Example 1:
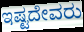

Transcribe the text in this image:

ಇಷ್ಟದೇವರು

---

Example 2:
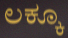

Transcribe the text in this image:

ಲಕ್ಕೂ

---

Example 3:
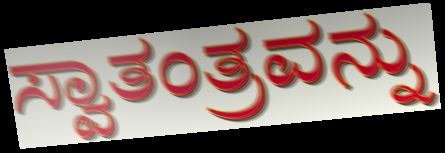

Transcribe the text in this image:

ಸ್ವಾತಂತ್ರವನ್ನು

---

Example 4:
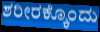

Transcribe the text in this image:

ಶರೀರಕ್ಕೊಂದು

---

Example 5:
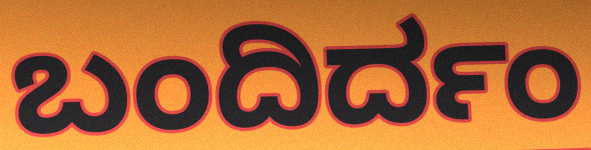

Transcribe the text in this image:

ಬಂದಿರ್ದಂ